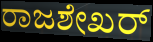
ರಾಜಶೇಖರ್